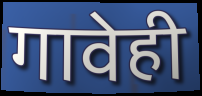
गावेही